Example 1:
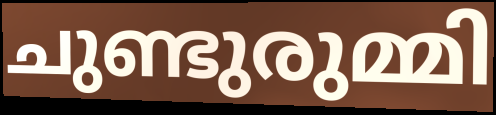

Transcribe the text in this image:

ചുണ്ടുരുമ്മി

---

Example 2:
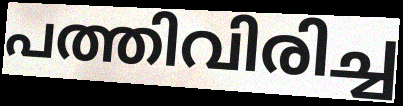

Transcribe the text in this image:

പത്തിവിരിച്ച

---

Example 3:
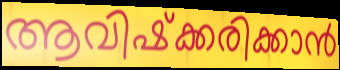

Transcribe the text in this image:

ആവിഷ്‌ക്കരിക്കാൻ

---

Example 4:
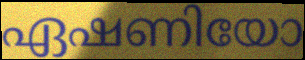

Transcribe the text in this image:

ഏഷണിയോ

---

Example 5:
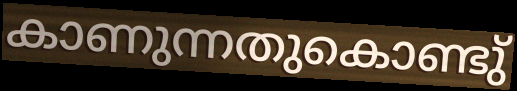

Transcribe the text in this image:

കാണുന്നതുകൊണ്ടു്